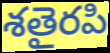
శతైరపి